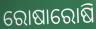
ରୋଷାରୋଷି